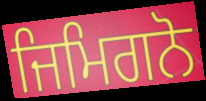
ਜਿਮਿਗਨੋ